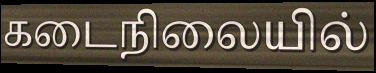
கடைநிலையில்